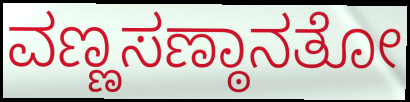
ವಣ್ಣಸಣ್ಠಾನತೋ